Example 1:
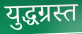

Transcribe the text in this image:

युद्धग्रस्त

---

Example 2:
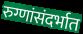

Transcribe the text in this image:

रुग्णांसंदर्भात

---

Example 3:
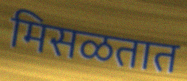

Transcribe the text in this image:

मिसळतात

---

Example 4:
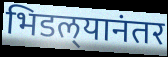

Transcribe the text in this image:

भिडल्यानंतर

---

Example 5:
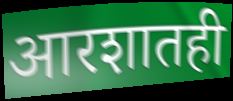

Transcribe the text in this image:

आरशातही